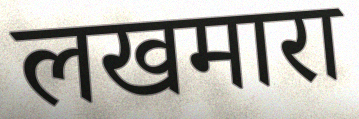
लखमारा